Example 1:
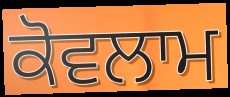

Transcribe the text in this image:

ਕੋਵਲਾਮ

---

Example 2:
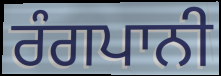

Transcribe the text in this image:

ਰੰਗਪਾਨੀ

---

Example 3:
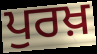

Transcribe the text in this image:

ਪੁਰਖ਼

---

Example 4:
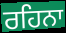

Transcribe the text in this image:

ਰਹਿਨਾ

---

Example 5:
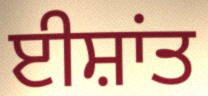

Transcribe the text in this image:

ਈਸ਼ਾਂਤ